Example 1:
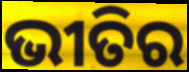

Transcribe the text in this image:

ଭୀତିର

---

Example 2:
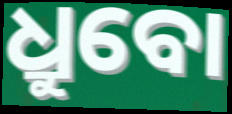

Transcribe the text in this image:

ଧ୍ରୁବୋ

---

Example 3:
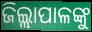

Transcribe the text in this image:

ଜିଲ୍ଲାପାଳଙ୍କୁ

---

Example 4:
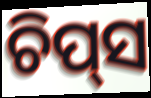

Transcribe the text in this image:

ଚିପ୍‌ସ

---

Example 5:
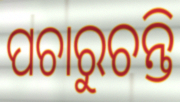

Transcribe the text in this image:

ପଚାରୁଚନ୍ତି